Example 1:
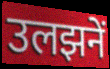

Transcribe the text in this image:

उलझनें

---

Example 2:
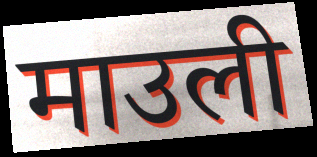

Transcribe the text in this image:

माउली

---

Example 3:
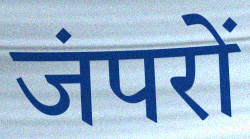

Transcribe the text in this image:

जंपरों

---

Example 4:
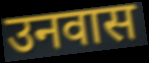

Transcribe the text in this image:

उनवास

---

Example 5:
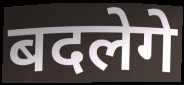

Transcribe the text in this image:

बदलेगे